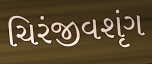
ચિરંજીવશૃંગ